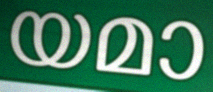
യമാ